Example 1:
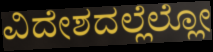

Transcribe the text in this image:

ವಿದೇಶದಲ್ಲೆಲ್ಲೋ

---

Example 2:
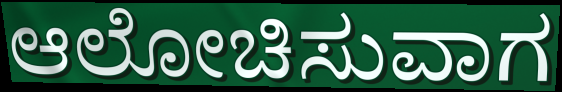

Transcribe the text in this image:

ಆಲೋಚಿಸುವಾಗ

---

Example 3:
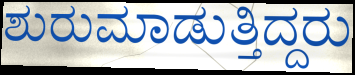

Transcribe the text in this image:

ಶುರುಮಾಡುತ್ತಿದ್ದರು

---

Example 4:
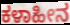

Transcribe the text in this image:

ಕಳಾಹೀನ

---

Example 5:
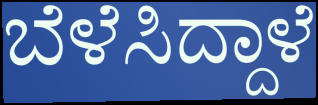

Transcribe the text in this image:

ಬೆಳೆಸಿದ್ದಾಳೆ